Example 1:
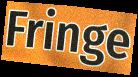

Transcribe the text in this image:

Fringe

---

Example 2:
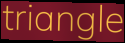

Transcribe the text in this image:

triangle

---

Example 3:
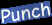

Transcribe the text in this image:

Punch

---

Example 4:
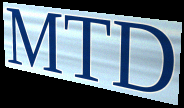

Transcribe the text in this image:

MTD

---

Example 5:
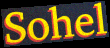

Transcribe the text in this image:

Sohel